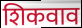
शिकवाव